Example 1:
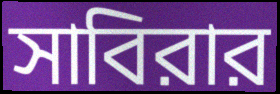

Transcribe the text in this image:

সাবিরার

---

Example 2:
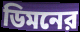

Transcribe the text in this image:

ডিমনের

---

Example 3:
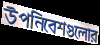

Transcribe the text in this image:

উপনিবেশগুলোর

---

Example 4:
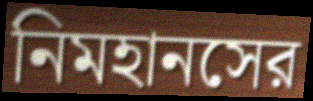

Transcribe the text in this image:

নিমহানসের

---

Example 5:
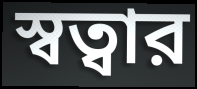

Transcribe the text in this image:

স্বত্বার